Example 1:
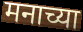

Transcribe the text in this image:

मनाच्या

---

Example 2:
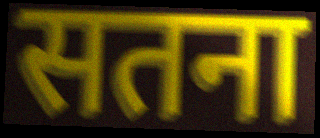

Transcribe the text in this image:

सतना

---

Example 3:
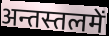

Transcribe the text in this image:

अन्तस्तलमें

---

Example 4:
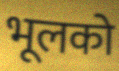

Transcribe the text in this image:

भूलको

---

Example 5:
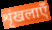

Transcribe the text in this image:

शृंखलाएँ